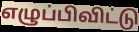
எழுப்பிவிட்டு